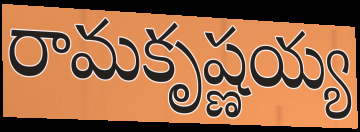
రామకృష్ణయ్య